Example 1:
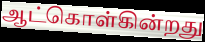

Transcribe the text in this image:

ஆட்கொள்கின்றது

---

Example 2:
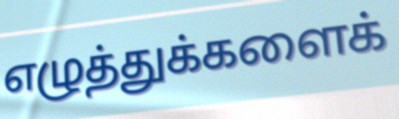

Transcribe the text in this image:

எழுத்துக்களைக்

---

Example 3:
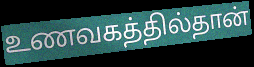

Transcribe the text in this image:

உணவகத்தில்தான்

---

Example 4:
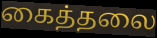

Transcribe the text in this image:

கைத்தலை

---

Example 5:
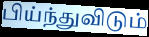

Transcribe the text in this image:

பிய்ந்துவிடும்